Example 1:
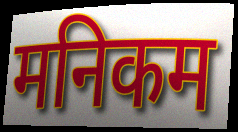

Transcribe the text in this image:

मनिकम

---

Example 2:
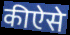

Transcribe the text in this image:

कीऐसे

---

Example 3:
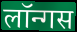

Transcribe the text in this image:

लॉन्गस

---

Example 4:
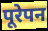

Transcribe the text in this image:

पूरेपन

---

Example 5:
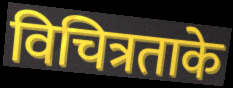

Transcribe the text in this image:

विचित्रताके